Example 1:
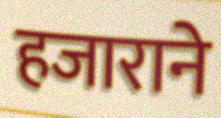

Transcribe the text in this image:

हजाराने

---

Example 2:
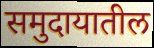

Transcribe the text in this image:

समुदायातील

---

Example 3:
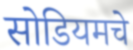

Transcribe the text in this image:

सोडियमचे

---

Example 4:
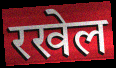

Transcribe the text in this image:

रखेल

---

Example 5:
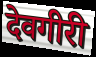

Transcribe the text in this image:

देवगीरी